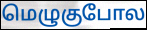
மெழுகுபோல